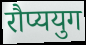
रौप्ययुग